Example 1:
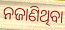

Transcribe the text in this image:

ନଜାଣିଥିବା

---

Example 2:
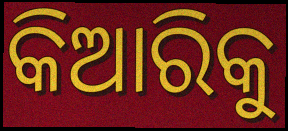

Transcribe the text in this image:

କିଆରିକୁ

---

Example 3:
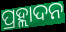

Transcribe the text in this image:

ପ୍ରହ୍ଲାଦନ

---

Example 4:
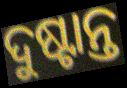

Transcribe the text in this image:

ଦୁଷ୍ଟାନ୍ତ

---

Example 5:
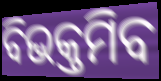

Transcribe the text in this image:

ବିଭକ୍ତମିବ